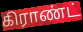
கிராண்ட்